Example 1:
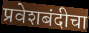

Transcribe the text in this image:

प्रवेशबंदीचा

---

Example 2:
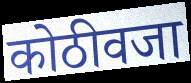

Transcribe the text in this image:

कोठीवजा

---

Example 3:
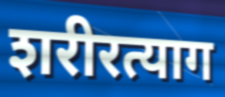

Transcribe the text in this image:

शरीरत्याग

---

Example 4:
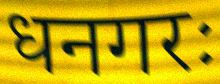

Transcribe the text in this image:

धनगरः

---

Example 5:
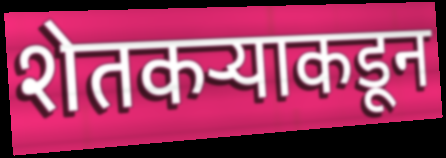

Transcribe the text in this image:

शेतकऱ्याकडून